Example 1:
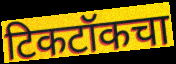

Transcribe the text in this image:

टिकटॉकचा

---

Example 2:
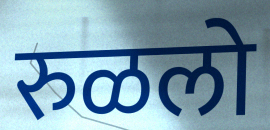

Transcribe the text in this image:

रुळलो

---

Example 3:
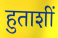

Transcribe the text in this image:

हुताशीं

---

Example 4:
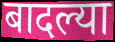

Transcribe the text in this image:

बादल्या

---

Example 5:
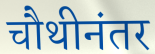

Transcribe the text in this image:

चौथीनंतर